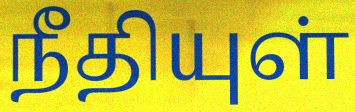
நீதியுள்